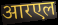
आरएल